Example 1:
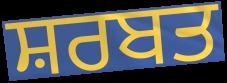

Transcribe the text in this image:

ਸ਼ਰਬਤ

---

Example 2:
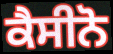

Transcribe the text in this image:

ਕੈਸੀਨੋ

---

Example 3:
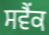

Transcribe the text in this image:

ਸਵੈਂਕ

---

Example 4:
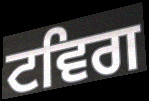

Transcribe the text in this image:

ਟਵਿਗ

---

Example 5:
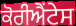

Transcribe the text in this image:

ਕੋਰੀਐਂਟੇਸ